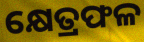
କ୍ଷେତ୍ରଫଳ